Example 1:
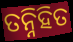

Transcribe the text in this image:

ତନ୍ନିହିତ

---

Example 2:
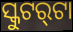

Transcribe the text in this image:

ସ୍କୁଟର୍‌ଟା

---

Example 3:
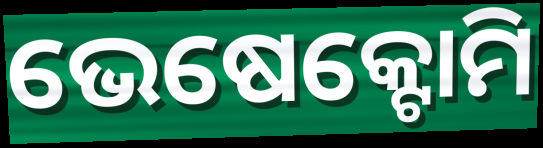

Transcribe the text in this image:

ଭେଷେକ୍ଟୋମି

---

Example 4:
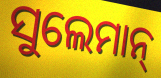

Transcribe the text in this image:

ସୁଲେମାନ୍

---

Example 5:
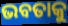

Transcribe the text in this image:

ଭବତାକୁ